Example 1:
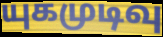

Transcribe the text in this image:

யுகமுடிவு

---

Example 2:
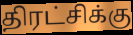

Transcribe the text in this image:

திரட்சிக்கு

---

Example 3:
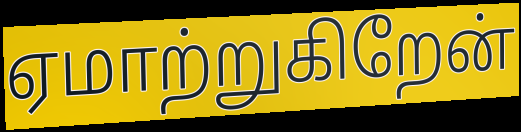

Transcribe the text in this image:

ஏமாற்றுகிறேன்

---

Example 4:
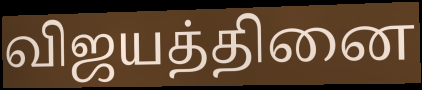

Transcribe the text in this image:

விஜயத்தினை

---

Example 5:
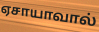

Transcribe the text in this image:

ஏசாயாவால்